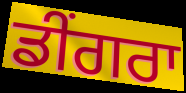
ਡੀਂਗਰਾ